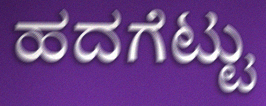
ಹದಗೆಟ್ಟು